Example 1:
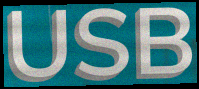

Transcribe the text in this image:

USB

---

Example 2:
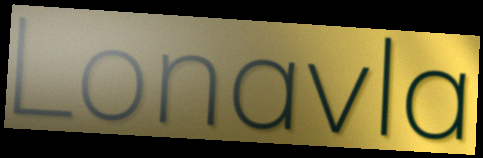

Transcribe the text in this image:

Lonavla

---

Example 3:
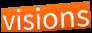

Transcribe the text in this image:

visions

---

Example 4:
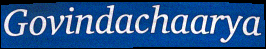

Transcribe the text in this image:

Govindachaarya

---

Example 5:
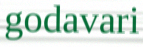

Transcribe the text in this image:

godavari